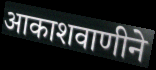
आकाशवाणीने